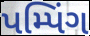
પમ્પિંગ